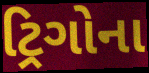
ટ્રિગોના